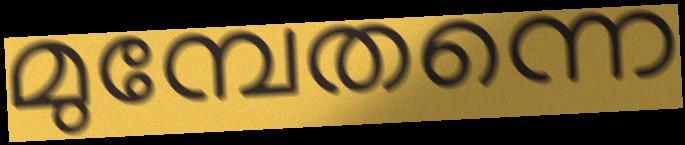
മുമ്പേതന്നെ